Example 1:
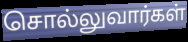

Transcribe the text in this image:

சொல்லுவார்கள்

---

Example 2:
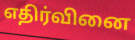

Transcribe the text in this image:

எதிர்வினை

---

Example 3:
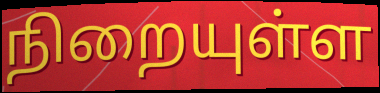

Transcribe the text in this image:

நிறையுள்ள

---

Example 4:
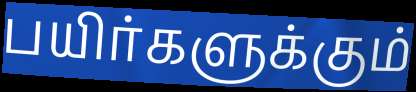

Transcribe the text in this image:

பயிர்களுக்கும்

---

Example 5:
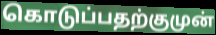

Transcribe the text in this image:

கொடுப்பதற்குமுன்